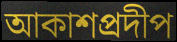
আকাশপ্রদীপ